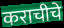
कराचीचे